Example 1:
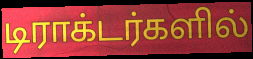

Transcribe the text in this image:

டிராக்டர்களில்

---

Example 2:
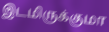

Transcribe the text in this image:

இடமிருக்குமா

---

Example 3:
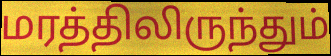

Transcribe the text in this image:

மரத்திலிருந்தும்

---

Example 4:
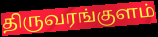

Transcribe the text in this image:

திருவரங்குளம்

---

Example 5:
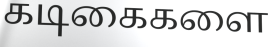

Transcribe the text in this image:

கடிகைகளை